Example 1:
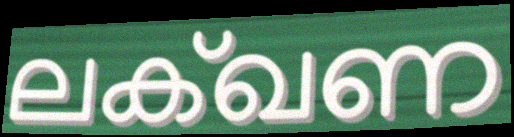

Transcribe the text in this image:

ലക്ഖണ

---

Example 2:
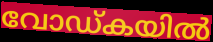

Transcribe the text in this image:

വോഡ്കയിൽ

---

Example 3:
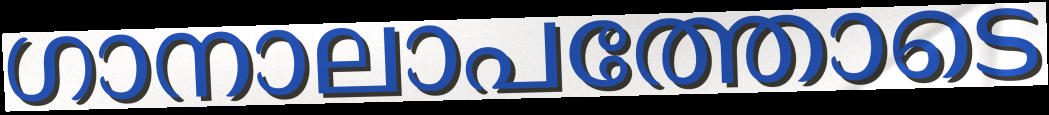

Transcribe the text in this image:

ഗാനാലാപത്തോടെ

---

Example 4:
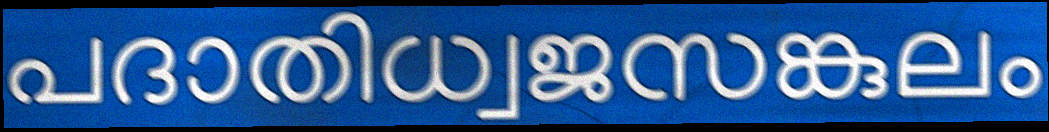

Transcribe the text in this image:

പദാതിധ്വജസങ്കുലം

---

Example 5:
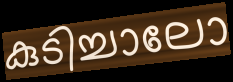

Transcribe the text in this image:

കുടിച്ചാലോ